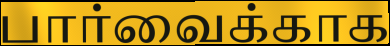
பார்வைக்காக